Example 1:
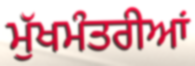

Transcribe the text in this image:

ਮੁੱਖਮੰਤਰੀਆਂ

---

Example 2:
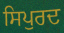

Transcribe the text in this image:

ਸਿਪੁਰਦ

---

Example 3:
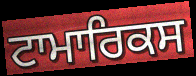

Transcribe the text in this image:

ਟਾਮਾਰਿਕਸ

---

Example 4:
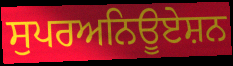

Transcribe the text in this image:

ਸੁਪਰਅਨਿਊਏਸ਼ਨ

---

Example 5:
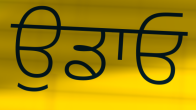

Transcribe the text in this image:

ਉਡਾਓ